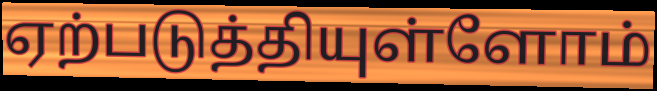
ஏற்படுத்தியுள்ளோம்